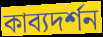
কাব্যদর্শন